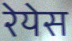
रेयेस